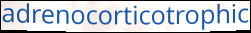
adrenocorticotrophic